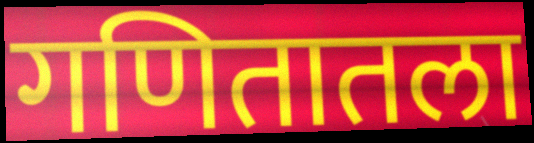
गणितातला